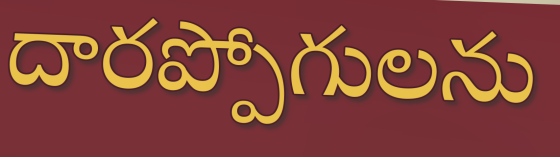
దారప్పోగులను